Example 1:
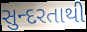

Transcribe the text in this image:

સુન્દરતાથી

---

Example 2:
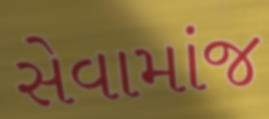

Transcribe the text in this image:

સેવામાંજ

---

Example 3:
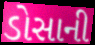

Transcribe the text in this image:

ડોસાની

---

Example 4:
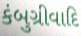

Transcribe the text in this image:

કંબુગ્રીવાદિ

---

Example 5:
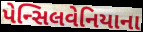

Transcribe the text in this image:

પેન્સિલવેનિયાના